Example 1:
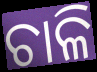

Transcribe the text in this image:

ଚାଳି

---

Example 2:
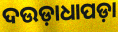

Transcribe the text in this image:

ଦଉଡ଼ାଧାପଡ଼ା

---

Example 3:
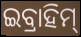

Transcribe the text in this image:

ଇବ୍ରାହିମ୍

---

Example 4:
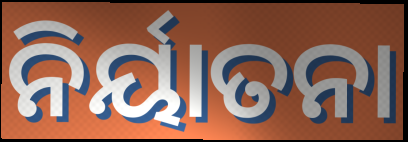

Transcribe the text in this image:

ନିର୍ୟାତନା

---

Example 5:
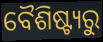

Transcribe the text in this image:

ବୈଶିଷ୍ଟ୍ୟରୁ